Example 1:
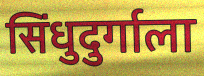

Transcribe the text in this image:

सिंधुदुर्गाला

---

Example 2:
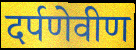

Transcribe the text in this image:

दर्पणेवीण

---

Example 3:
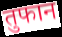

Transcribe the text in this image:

तुफान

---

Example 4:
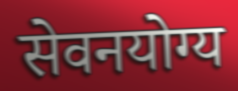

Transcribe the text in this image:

सेवनयोग्य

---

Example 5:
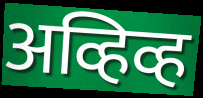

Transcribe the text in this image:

अव्हिव्ह